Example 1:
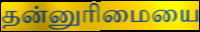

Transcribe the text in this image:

தன்னுரிமையை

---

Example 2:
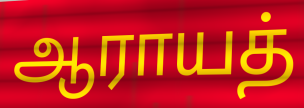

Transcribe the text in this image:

ஆராயத்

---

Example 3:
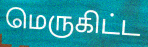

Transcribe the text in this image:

மெருகிட்ட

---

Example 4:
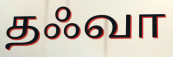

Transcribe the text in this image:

தஃவா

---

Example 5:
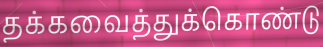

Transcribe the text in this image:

தக்கவைத்துக்கொண்டு